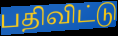
பதிவிட்டு